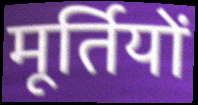
मूर्तियों